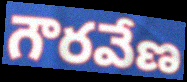
గౌరవేణ